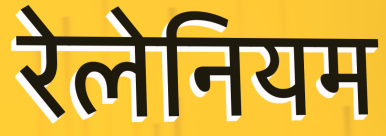
रेलेनियम